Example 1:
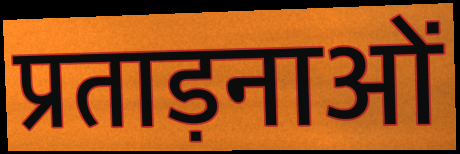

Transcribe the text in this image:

प्रताड़नाओं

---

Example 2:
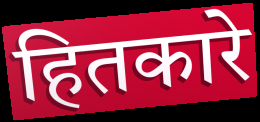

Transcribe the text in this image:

हितकारे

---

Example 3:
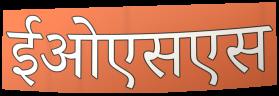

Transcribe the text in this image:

ईओएसएस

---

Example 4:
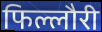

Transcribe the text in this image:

फिल्लौरी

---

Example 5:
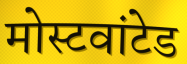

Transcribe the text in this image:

मोस्टवांटेड